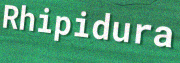
Rhipidura